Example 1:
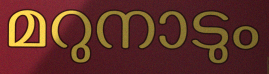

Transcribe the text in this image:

മറുനാടും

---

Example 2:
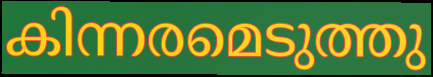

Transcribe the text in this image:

കിന്നരമെടുത്തു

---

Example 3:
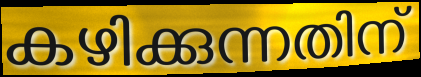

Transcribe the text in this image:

കഴിക്കുന്നതിന്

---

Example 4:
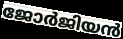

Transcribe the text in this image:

ജോർജിയൻ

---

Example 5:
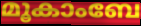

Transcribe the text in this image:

മൂകാംബേ